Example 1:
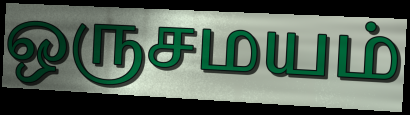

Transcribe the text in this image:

ஒருசமயம்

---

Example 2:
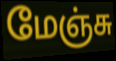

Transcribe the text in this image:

மேஞ்சு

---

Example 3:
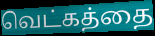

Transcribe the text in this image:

வெட்கத்தை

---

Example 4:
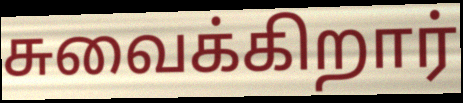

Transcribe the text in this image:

சுவைக்கிறார்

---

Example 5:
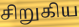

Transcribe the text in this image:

சிறுகிய